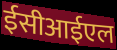
ईसीआईएल